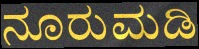
ನೂರುಮಡಿ